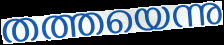
തത്തയെന്നു